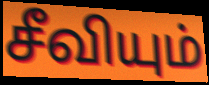
சீவியும்